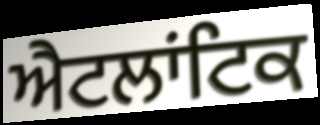
ਐਟਲਾਂਟਿਕ